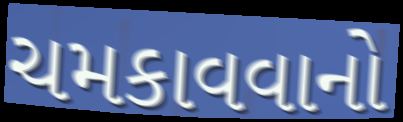
ચમકાવવાનો